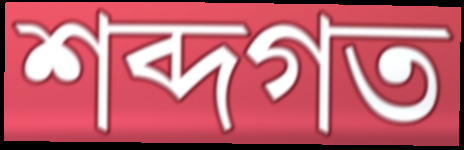
শব্দগত